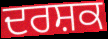
ਦਰਸ਼ਕ